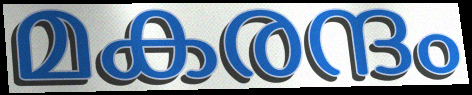
മകരന്ദം